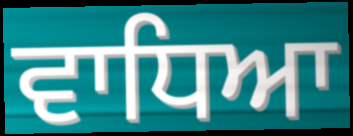
ਵਾਧਿਆ